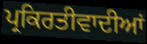
ਪ੍ਰਕਿਰਤੀਵਾਦੀਆਂ